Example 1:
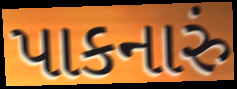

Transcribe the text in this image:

પાકનારું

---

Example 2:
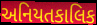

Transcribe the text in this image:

અનિયતકાલિક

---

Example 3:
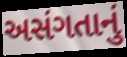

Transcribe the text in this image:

અસંગતાનું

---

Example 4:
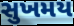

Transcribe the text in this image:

સુખમય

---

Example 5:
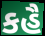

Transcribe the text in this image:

કહૈ